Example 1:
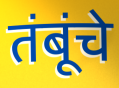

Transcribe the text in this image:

तंबूंचे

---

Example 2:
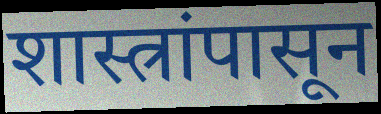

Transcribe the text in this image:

शास्त्रांपासून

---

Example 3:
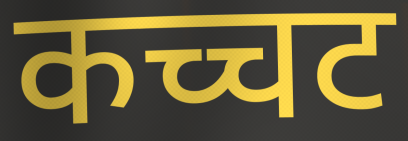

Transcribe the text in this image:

कच्चट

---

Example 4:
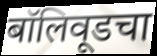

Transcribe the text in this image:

बॉलिवूडचा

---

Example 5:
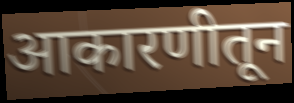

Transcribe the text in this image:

आकारणीतून